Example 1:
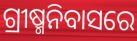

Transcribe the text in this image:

ଗ୍ରୀଷ୍ମନିବାସରେ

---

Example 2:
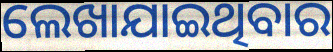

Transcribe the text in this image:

ଲେଖାଯାଇଥିବାର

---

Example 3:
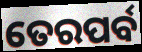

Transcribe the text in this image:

ତେରପର୍ବ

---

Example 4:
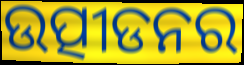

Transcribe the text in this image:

ଉତ୍ପୀଡନର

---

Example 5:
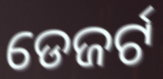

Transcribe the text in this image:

ଡେଜର୍ଟ